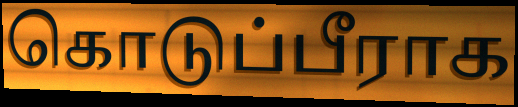
கொடுப்பீராக